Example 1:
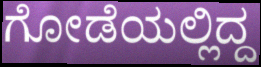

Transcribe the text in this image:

ಗೋಡೆಯಲ್ಲಿದ್ದ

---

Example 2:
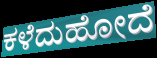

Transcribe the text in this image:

ಕಳೆದುಹೋದೆ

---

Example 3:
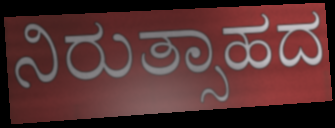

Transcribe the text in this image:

ನಿರುತ್ಸಾಹದ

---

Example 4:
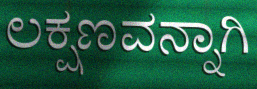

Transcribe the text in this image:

ಲಕ್ಷಣವನ್ನಾಗಿ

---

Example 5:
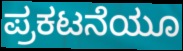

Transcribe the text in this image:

ಪ್ರಕಟನೆಯೂ